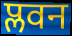
प्लवन